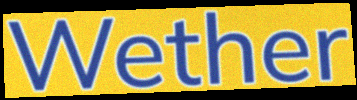
Wether